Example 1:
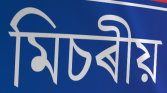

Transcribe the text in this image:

মিচৰীয়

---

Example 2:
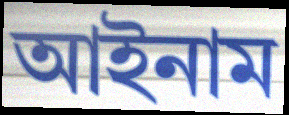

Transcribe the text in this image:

আইনাম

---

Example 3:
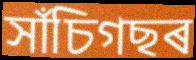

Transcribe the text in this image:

সাঁচিগছৰ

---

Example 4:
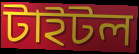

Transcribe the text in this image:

টাইটল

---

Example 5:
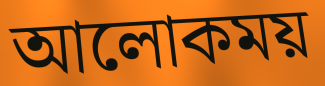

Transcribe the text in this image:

আলোকময়